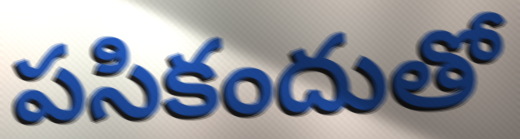
పసికందుతో